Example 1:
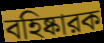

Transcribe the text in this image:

বহিষ্কারক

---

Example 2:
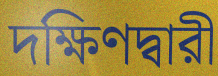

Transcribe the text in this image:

দক্ষিণদ্বারী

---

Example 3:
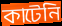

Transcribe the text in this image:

কাটেনি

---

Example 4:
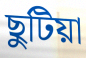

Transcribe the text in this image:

ছুটিয়া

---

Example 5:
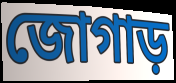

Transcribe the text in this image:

জোগাড়